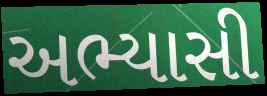
અભ્યાસી